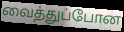
வைத்துப்போன